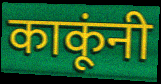
काकूंनी